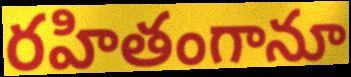
రహితంగానూ